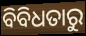
ବିବିଧତାରୁ